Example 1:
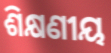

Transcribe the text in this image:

ଶିକ୍ଷଣୀୟ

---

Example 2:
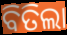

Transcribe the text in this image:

ବିତିଲା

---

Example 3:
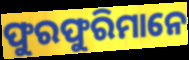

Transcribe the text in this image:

ଫୁରଫୁରିମାନେ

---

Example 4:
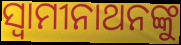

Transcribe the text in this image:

ସ୍ୱାମୀନାଥନଙ୍କୁ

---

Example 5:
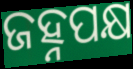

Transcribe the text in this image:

ଜହ୍ନପକ୍ଷ